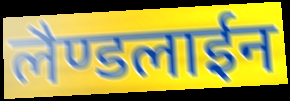
लैण्डलाईन